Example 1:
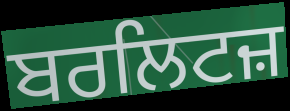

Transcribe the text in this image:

ਬਰਲਿਟਜ਼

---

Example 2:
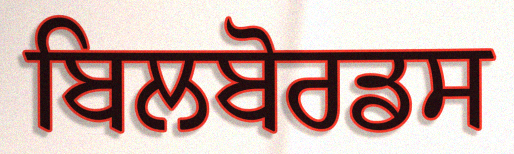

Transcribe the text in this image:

ਬਿਲਬੋਰਡਸ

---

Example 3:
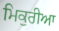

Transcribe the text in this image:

ਮਿਕੁਰੀਆ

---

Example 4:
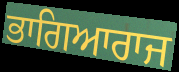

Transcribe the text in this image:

ਭਾਗਿਆਰਾਜ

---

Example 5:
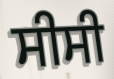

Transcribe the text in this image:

ਸੀਸੀ